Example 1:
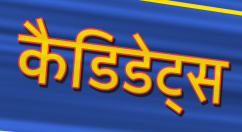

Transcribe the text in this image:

कैडिडेट्स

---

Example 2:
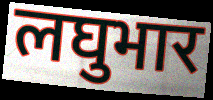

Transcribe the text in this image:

लघुभार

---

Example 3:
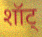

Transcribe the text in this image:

शॉट्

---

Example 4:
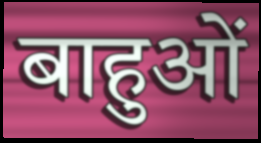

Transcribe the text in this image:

बाहुओं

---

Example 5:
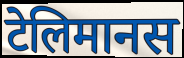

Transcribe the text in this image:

टेलिमानस